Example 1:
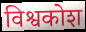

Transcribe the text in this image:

विश्वकोश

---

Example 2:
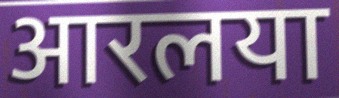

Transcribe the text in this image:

आरलया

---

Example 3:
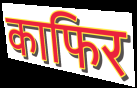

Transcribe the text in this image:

काफिर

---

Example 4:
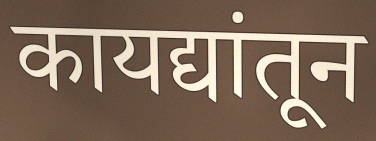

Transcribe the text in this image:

कायद्यांतून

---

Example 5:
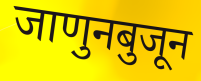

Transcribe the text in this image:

जाणुनबुजून